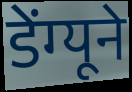
डेंग्यूने